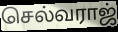
செல்வராஜ்